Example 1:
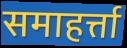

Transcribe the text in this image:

समाहर्त्ता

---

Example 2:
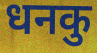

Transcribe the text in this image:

धनकु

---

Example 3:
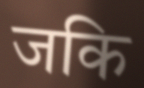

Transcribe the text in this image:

जकि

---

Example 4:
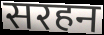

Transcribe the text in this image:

सरहन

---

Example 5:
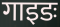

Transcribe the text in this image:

गाइडः